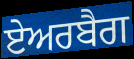
ਏਅਰਬੈਗ